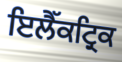
ਇਲੈੱਕਟ੍ਰਿਕ